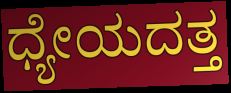
ಧ್ಯೇಯದತ್ತ